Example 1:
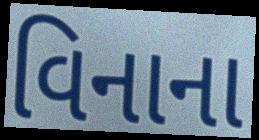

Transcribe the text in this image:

વિનાના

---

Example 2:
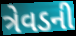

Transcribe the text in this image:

ત્રેવડની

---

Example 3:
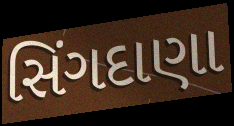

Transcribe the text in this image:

સિંગદાણા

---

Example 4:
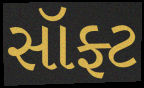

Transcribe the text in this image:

સૉફ્ટ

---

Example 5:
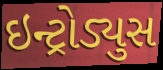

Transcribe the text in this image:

ઇન્ટ્રોડ્યુસ